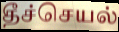
தீச்செயல்